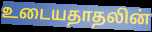
உடையதாதலின்